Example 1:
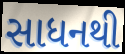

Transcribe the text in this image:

સાધનથી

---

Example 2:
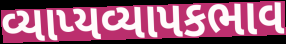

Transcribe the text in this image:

વ્યાપ્યવ્યાપકભાવ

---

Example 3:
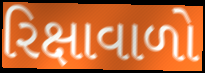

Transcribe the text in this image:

રિક્ષાવાળો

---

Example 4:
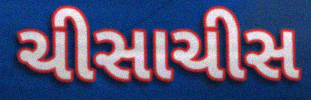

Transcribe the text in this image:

ચીસાચીસ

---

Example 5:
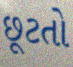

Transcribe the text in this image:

છૂટતો